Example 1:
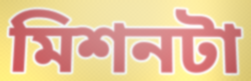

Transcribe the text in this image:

মিশনটা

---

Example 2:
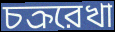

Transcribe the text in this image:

চক্ররেখা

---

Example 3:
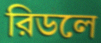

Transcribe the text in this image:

রিডলে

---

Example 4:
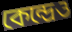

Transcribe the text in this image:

কেন্দ্রেও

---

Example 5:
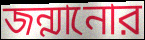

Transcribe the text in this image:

জন্মানোর